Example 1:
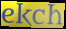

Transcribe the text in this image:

ekch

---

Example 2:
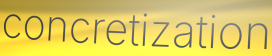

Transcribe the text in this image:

concretization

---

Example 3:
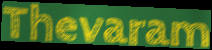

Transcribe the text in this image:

Thevaram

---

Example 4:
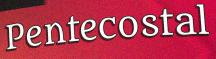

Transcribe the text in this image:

Pentecostal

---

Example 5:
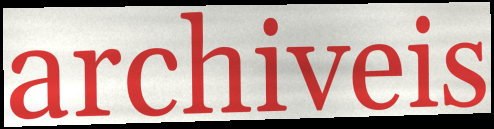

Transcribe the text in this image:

archiveis